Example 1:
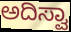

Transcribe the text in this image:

ಅದಿಸ್ವಾ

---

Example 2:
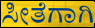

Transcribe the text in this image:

ಸೀತೆಗಾಗಿ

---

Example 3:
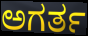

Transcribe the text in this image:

ಅಗರ್ತ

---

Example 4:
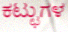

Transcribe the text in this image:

ಕಟ್ಟುಗಳ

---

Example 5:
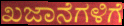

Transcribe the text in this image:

ಖಜಾನೆಗಳಿಗೆ